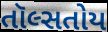
તૉલ્સતોય